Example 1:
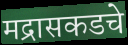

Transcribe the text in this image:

मद्रासकडचे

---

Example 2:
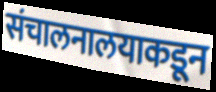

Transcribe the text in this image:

संचालनालयाकडून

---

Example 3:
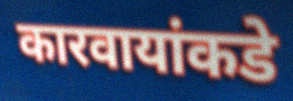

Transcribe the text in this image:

कारवायांकडे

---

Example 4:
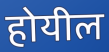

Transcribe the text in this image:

होयील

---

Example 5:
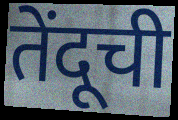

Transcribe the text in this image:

तेंदूची